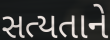
સત્યતાને